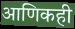
आणिकही